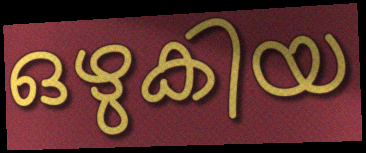
ഒഴുകിയ